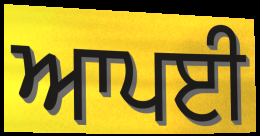
ਆਪਈ